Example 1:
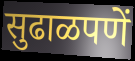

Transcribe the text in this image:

सुढाळपणें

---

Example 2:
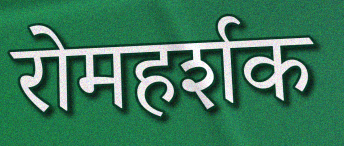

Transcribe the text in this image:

रोमहर्शक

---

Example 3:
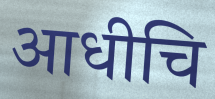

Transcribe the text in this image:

आधीचि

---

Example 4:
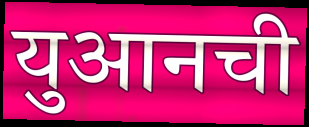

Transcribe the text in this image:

युआनची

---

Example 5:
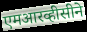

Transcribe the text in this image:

एमआरव्हीसीने